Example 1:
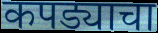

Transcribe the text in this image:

कपड्याचा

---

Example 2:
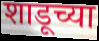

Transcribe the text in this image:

शाडूच्या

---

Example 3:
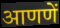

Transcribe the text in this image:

आणणें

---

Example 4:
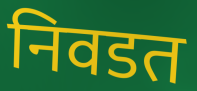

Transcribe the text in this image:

निवडत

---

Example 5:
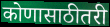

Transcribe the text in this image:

कोणासाठीतरी